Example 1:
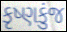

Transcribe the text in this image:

કૃષ્ણકુંજ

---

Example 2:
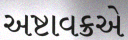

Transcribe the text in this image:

અષ્ટાવક્રએ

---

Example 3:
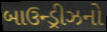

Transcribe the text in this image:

બાઉન્ડ્રીઝનો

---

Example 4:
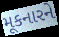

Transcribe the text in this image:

મૂકનારને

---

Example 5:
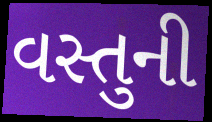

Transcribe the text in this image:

વસ્તુની